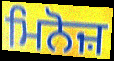
ਮਿਨੋਜ਼